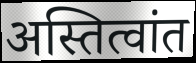
अस्तित्वांत